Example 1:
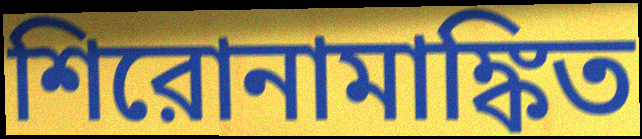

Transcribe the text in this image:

শিরোনামাঙ্কিত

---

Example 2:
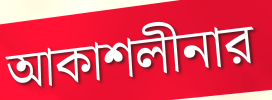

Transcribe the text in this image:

আকাশলীনার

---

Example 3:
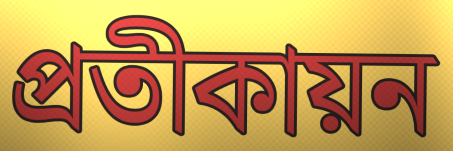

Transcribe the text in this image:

প্রতীকায়ন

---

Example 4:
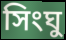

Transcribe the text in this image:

সিংঘু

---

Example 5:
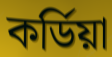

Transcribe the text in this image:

কর্ডিয়া